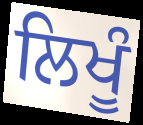
ਲਿਖੂੰ